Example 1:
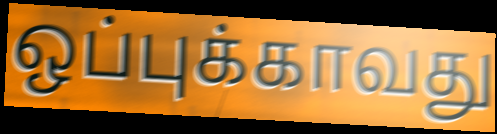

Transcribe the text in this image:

ஒப்புக்காவது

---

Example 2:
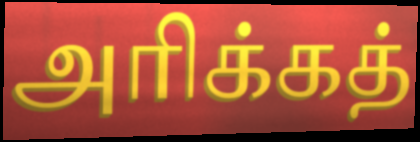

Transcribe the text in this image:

அரிக்கத்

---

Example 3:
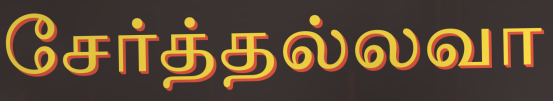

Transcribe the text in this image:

சேர்த்தல்லவா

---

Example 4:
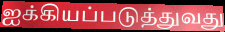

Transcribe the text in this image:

ஐக்கியப்படுத்துவது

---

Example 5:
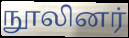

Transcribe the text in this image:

நூலினர்